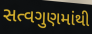
સત્વગુણમાંથી